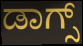
ಡಾಗ್ಸ್